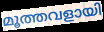
മൂത്തവളായി